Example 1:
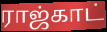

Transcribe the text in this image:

ராஜ்காட்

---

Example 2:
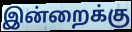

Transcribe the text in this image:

இன்றைக்கு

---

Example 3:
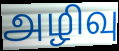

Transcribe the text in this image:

அழிவு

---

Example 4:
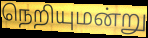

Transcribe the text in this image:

நெறியுமன்று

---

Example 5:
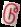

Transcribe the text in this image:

டூ